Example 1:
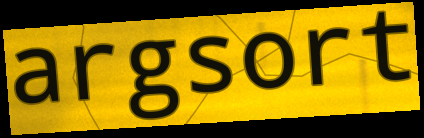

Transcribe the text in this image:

argsort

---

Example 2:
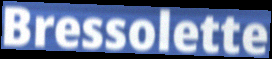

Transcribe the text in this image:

Bressolette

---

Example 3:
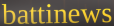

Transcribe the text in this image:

battinews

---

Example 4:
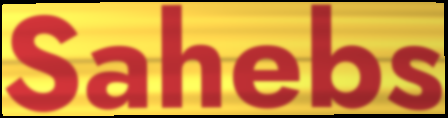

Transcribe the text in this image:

Sahebs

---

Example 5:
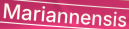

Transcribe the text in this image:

Mariannensis